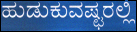
ಹುಡುಕುವಷ್ಟರಲ್ಲಿ